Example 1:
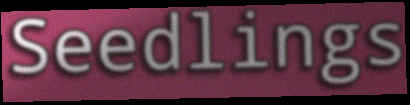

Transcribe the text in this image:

Seedlings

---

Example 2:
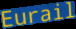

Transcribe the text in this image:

Eurail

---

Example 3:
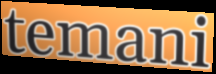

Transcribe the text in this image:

temani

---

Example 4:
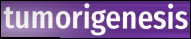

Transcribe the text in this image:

tumorigenesis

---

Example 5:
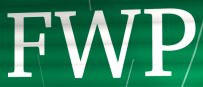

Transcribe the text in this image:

FWP